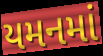
યમનમાં